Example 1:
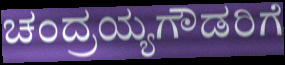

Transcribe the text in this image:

ಚಂದ್ರಯ್ಯಗೌಡರಿಗೆ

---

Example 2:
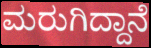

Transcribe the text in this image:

ಮರುಗಿದ್ದಾನೆ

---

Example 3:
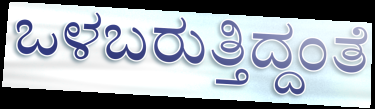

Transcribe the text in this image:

ಒಳಬರುತ್ತಿದ್ದಂತೆ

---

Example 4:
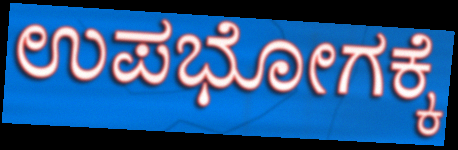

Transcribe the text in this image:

ಉಪಭೋಗಕ್ಕೆ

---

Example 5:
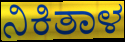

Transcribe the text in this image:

ನಿಕಿತಾಳ